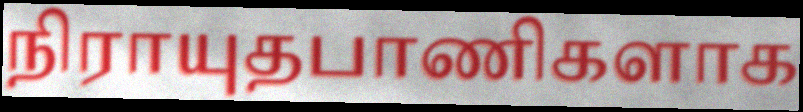
நிராயுதபாணிகளாக